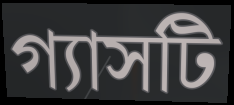
গ্যাসটি